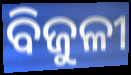
ବିଜୁଳୀ